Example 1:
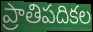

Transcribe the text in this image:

ప్రాతిపదికల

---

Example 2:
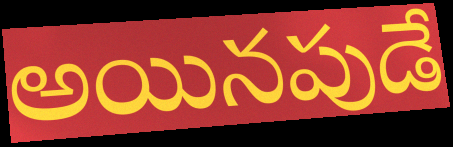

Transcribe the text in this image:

అయినపుడే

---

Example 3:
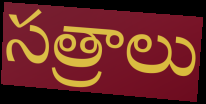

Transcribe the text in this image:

సత్రాలు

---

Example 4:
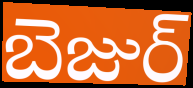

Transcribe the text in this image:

బెజుర్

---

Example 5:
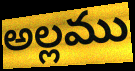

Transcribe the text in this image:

అల్లము